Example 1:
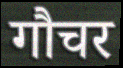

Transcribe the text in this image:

गौचर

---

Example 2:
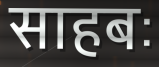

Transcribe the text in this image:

साहबः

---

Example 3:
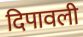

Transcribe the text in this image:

दिपावली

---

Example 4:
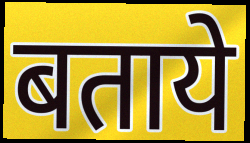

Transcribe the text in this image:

बताये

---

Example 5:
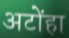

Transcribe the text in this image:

अटोंहा